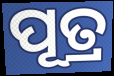
ପୂତ୍ର